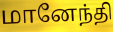
மானேந்தி